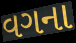
વગના